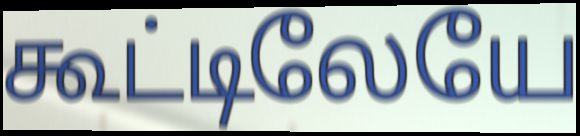
கூட்டிலேயே